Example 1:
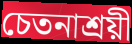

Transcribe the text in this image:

চেতনাশ্রয়ী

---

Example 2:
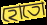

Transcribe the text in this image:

হোতো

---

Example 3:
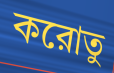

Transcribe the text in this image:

করোতু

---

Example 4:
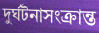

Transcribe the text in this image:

দুর্ঘটনাসংক্রান্ত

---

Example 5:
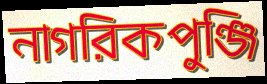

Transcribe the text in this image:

নাগরিকপুঞ্জি